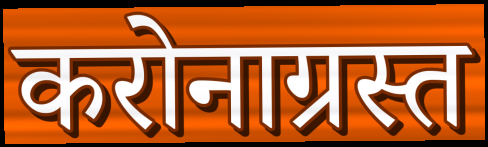
करोनाग्रस्त